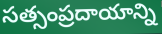
సత్సంప్రదాయాన్ని